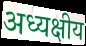
अध्यक्षीय